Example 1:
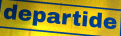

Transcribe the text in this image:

departide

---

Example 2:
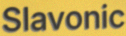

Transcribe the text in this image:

Slavonic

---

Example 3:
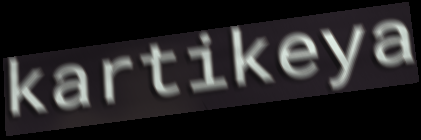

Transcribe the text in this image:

kartikeya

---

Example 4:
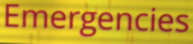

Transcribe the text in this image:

Emergencies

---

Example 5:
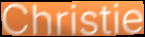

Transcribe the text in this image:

Christie